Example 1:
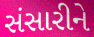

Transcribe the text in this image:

સંસારીને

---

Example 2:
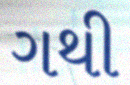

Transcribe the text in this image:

ગથી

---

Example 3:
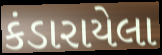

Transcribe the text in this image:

કંડારાયેલા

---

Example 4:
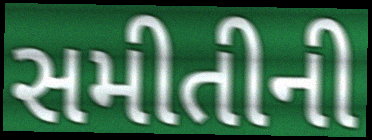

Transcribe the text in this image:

સમીતીની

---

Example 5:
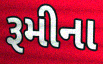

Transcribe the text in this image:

રૂમીના